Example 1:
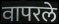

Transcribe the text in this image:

वापरले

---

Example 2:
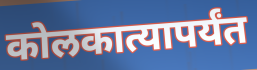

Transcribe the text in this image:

कोलकात्यापर्यंत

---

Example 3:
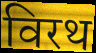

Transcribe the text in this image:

विरथ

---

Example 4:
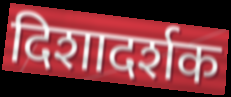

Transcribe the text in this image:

दिशादर्शक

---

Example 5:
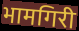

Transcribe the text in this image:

भामगिरी